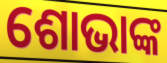
ଶୋଭାଙ୍କ